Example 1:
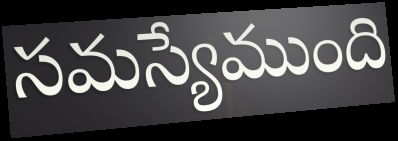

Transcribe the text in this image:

సమస్యేముంది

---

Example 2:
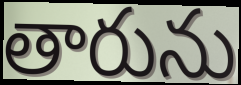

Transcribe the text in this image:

తారును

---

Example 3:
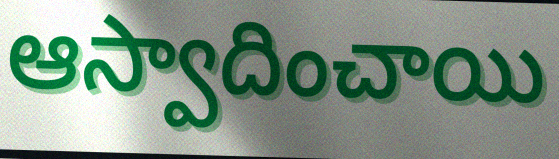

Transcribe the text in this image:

ఆస్వాదించాయి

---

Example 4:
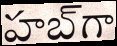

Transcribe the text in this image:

హబ్‌గా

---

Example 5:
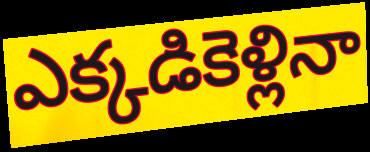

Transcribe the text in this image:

ఎక్కడికెళ్లినా